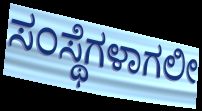
ಸಂಸ್ಥೆಗಳಾಗಲೀ